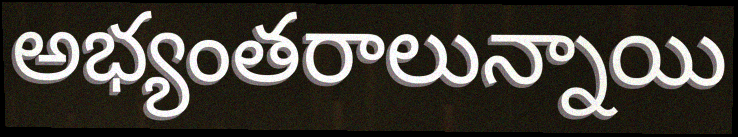
అభ్యంతరాలున్నాయి